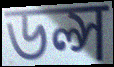
ডল্স